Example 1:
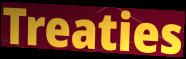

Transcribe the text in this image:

Treaties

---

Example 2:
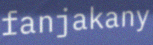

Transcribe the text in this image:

fanjakany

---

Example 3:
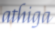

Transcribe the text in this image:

athiga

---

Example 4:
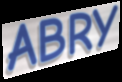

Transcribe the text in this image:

ABRY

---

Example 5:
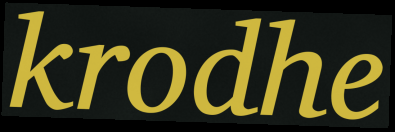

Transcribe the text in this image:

krodhe